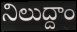
నిలుద్దాం